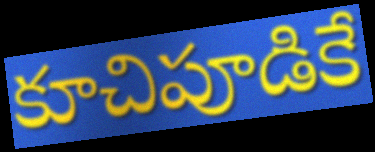
కూచిపూడికే